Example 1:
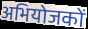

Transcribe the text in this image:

अभियोजकों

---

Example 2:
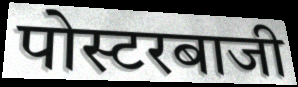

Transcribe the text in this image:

पोस्टरबाजी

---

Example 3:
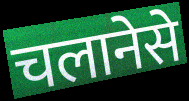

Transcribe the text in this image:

चलानेसे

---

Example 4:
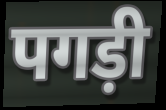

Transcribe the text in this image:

पगड़ी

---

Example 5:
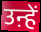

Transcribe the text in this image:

उऩ्हें